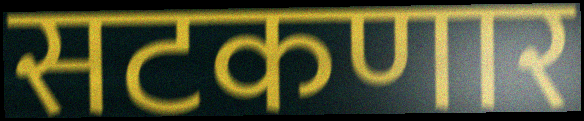
सटकणार